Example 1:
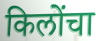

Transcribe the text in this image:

किलोंचा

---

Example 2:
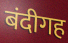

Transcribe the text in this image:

बंदीगह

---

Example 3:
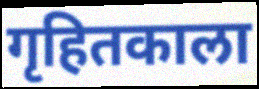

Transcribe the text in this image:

गृहितकाला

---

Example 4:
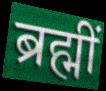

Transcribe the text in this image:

ब्रह्मीं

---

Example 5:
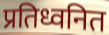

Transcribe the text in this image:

प्रतिध्वनित